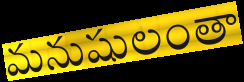
మనుషులంతా